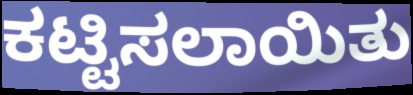
ಕಟ್ಟಿಸಲಾಯಿತು